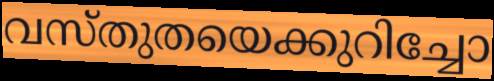
വസ്തുതയെക്കുറിച്ചോ